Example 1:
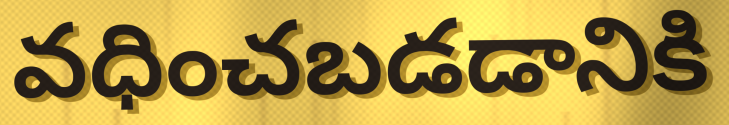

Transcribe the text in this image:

వధించబడడానికి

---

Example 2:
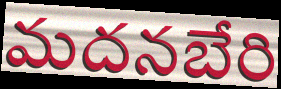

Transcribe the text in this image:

మదనబేరి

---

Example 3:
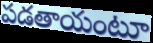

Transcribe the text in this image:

పడతాయంటూ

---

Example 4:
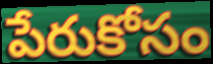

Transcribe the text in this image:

పేరుకోసం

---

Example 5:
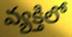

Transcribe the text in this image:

వ్యక్తిలో